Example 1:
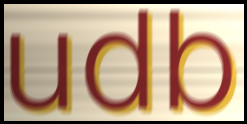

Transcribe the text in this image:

udb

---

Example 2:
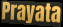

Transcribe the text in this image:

Prayata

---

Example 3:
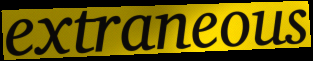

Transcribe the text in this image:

extraneous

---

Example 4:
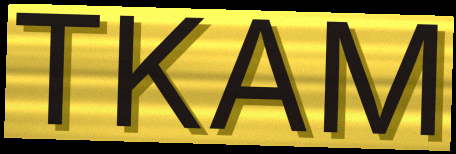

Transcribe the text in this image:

TKAM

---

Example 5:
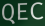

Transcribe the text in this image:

QEC